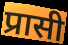
प्रासी